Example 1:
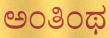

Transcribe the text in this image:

ಅಂತಿಂಥ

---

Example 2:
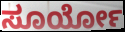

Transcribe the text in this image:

ಸೂರ್ಯೋ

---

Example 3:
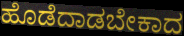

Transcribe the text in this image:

ಹೊಡೆದಾಡಬೇಕಾದ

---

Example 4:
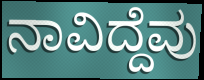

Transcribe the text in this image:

ನಾವಿದ್ದೆವು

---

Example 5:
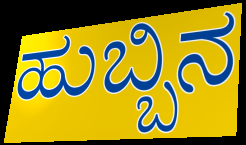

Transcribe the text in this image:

ಹುಬ್ಬಿನ